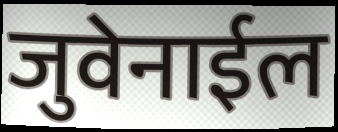
जुवेनाईल